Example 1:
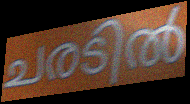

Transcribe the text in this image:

ചരടിൽ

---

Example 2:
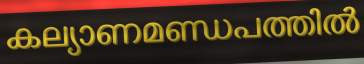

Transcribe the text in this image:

കല്യാണമണ്ഡപത്തിൽ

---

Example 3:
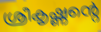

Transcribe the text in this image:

ശ്രീകൃഷ്ണന്റെ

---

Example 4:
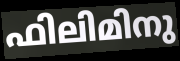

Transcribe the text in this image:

ഫിലിമിനു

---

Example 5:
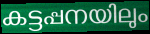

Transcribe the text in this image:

കട്ടപ്പനയിലും